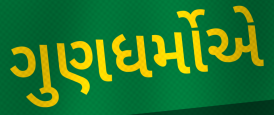
ગુણધર્મોએ